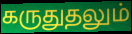
கருதுதலும்